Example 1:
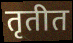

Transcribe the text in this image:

तृतीत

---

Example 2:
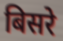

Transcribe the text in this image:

बिसरे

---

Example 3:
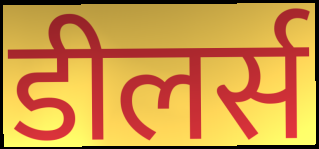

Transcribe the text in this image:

डीलर्स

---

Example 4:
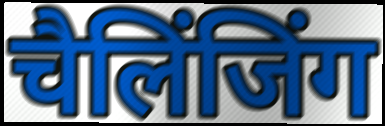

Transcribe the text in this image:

चैलिंजिंग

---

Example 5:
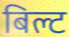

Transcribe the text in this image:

बिल्‍ट